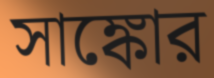
সাঙ্কোর